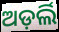
ଅଡ଼ର୍ଲି